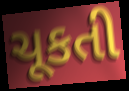
ચૂકતી